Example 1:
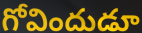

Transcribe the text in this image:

గోవిందుడూ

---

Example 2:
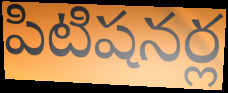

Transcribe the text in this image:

పిటిషనర్ల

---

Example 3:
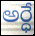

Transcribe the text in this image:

అర్ధే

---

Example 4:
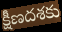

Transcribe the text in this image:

క్షీణదశకు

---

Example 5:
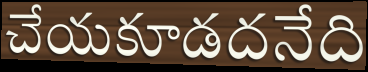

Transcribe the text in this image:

చేయకూడదనేది